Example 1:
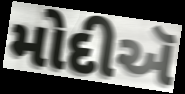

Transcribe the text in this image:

મોદીઍ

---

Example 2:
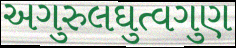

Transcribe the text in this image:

અગુરુલઘુત્વગુણ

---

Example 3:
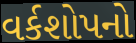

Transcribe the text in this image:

વર્કશોપનો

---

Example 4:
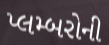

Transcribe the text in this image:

પ્લમ્બરોની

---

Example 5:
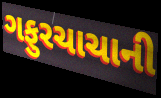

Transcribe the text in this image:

ગફુરચાચાની